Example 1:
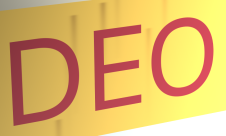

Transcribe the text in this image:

DEO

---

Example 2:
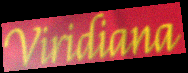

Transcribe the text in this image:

Viridiana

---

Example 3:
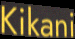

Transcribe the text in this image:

Kikani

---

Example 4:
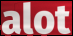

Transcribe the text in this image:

alot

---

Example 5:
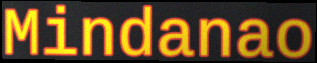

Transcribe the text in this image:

Mindanao